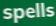
spells